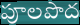
పూలపొద